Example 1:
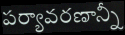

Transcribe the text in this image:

పర్యావరణాన్నీ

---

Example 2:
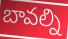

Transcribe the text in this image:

బావల్ని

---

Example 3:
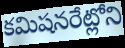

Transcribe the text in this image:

కమిషనరేట్లోని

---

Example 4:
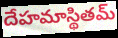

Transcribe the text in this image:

దేహమాస్థితమ్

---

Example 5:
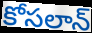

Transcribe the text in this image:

కోసలాన్